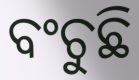
ବଂଚୁଛି